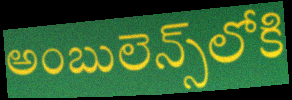
అంబులెన్స్‌లోకి